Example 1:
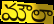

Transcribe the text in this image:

మౌలా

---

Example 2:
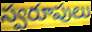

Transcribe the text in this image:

స్వరూపులు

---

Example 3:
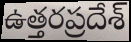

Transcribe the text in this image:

ఉత్తరప్రదేశ్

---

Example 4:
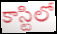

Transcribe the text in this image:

కాస్టిలో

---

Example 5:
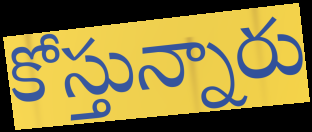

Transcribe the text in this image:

కోస్తున్నారు